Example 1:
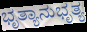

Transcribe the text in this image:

ಭೃತ್ಯಾನುಭೃತ್ಯ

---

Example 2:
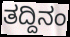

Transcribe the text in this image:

ತದ್ದಿನಂ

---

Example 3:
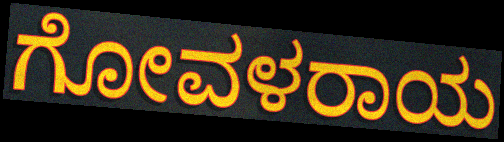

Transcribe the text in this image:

ಗೋವಳರಾಯ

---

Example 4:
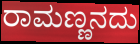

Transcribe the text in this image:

ರಾಮಣ್ಣನದು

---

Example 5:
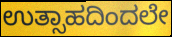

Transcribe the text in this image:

ಉತ್ಸಾಹದಿಂದಲೇ